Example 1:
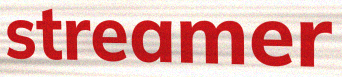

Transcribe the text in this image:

streamer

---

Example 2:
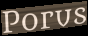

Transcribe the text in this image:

Porus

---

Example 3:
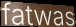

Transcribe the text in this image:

fatwas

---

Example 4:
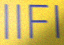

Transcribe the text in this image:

IIFI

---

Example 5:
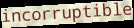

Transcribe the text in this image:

incorruptible